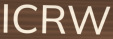
ICRW